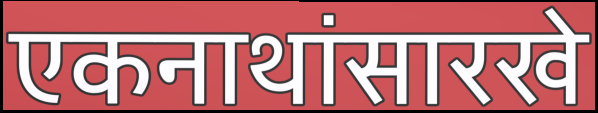
एकनाथांसारखे